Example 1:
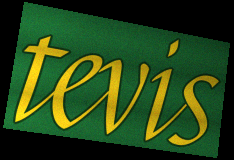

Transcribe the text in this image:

tevis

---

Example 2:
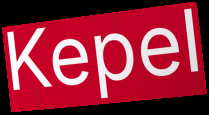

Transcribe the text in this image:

Kepel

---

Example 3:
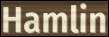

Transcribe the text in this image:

Hamlin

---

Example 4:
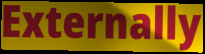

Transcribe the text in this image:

Externally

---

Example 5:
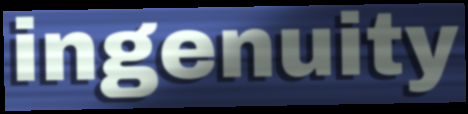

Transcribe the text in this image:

ingenuity